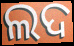
ଲଦ